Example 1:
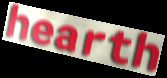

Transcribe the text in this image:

hearth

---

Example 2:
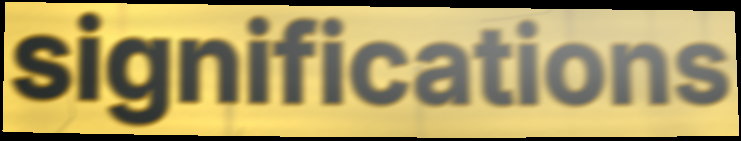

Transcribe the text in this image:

significations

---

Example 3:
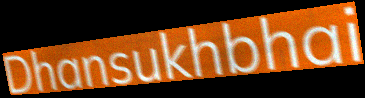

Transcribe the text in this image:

Dhansukhbhai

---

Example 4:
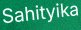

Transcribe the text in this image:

Sahityika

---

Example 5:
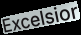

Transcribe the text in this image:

Excelsior